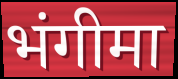
भंगीमा